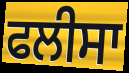
ਫਲੀਸਾ